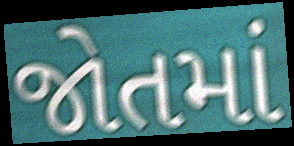
જોતમાં